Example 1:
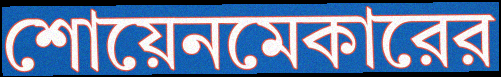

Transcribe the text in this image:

শোয়েনমেকারের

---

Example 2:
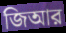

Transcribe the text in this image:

জিআর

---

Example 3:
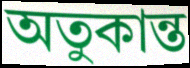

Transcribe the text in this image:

অতুকান্ত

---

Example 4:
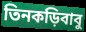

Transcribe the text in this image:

তিনকড়িবাবু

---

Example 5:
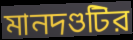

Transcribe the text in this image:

মানদণ্ডটির